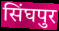
सिंघपुर